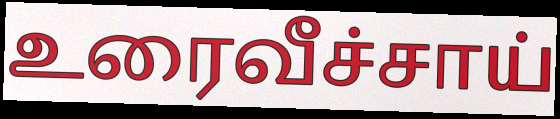
உரைவீச்சாய்